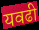
यवढी